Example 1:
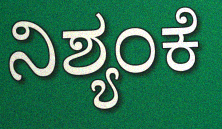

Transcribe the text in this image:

ನಿಶ್ಯಂಕೆ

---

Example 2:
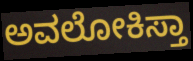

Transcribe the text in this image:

ಅವಲೋಕಿಸ್ತಾ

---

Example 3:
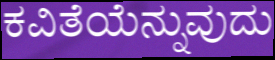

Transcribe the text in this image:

ಕವಿತೆಯೆನ್ನುವುದು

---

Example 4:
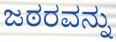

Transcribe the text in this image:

ಜಠರವನ್ನು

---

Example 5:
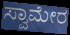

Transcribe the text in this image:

ಸ್ವಾಮೇರ